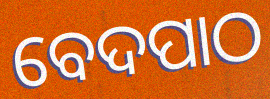
ବେଦପାଠ